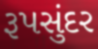
રૂપસુંદર